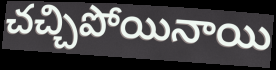
చచ్చిపోయినాయి